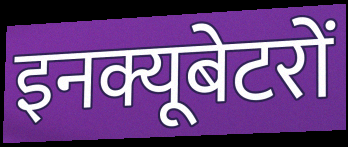
इनक्यूबेटरों